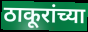
ठाकूरांच्या